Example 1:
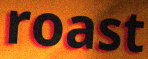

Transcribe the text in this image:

roast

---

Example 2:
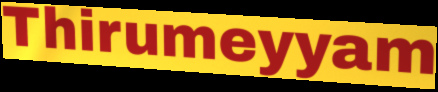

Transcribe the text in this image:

Thirumeyyam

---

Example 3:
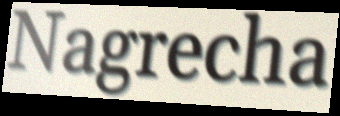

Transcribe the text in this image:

Nagrecha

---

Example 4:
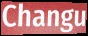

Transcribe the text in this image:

Changu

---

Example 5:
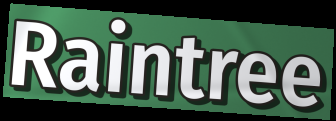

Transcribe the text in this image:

Raintree